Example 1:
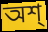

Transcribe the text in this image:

অশ্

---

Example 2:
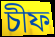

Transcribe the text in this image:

চীফ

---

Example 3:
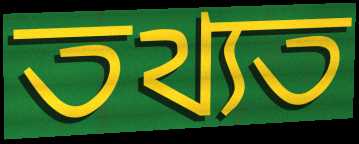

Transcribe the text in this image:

তথ্যত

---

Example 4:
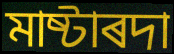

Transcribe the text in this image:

মাষ্টাৰদা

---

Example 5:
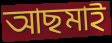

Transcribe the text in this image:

আছমাই